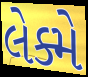
લેક્મે